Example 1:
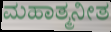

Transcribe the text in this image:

ಮಹಾತ್ಮನೀತ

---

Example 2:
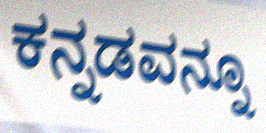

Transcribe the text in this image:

ಕನ್ನಡವನ್ನೂ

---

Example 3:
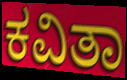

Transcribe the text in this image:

ಕವಿತಾ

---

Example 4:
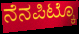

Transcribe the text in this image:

ನೆನಪಿಟ್ಕೊ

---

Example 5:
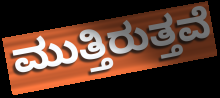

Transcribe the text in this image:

ಮುತ್ತಿರುತ್ತವೆ